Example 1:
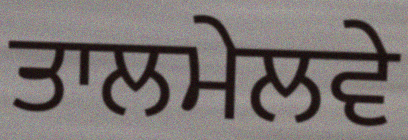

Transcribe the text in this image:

ਤਾਲਮੇਲਵੇ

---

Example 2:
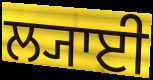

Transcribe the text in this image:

ਲ੍ਯਾਈ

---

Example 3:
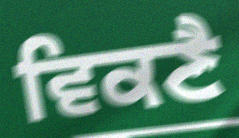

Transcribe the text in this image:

ਵਿਕਣੈ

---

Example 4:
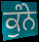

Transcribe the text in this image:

ਕੁੰਨੇ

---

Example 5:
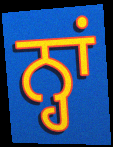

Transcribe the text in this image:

ਨ੍ਹਾਂ